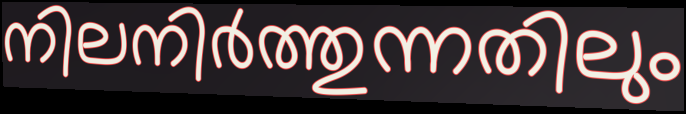
നിലനിർത്തുന്നതിലും